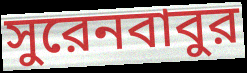
সুরেনবাবুর